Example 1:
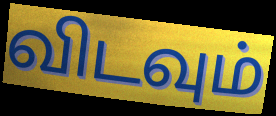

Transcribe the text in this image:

விடவும்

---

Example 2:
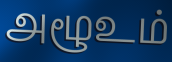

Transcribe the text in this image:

அழூஉம்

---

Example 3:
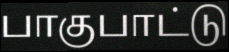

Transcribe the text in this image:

பாகுபாட்டு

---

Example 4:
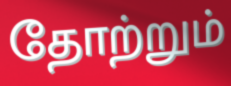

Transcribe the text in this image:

தோற்றும்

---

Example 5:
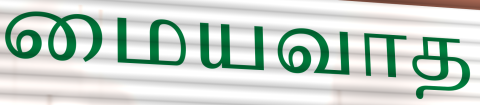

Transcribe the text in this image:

மையவாத